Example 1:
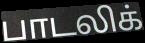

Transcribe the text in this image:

பாடலிக்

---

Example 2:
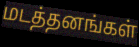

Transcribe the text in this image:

மடத்தனங்கள்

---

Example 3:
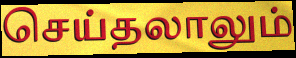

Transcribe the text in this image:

செய்தலாலும்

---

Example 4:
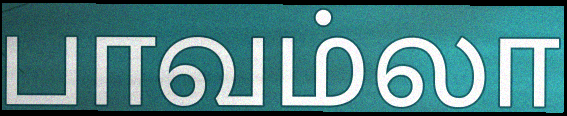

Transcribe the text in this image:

பாவம்லா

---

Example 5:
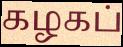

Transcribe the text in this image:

கழகப்